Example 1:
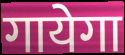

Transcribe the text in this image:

गायेगा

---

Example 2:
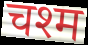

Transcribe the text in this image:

चश्म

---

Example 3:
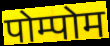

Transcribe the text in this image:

पोम्पोम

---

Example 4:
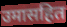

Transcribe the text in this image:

उमासहित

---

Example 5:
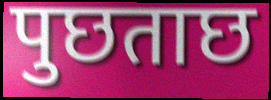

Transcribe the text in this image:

पुछताछ